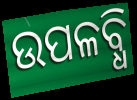
ଉପଳବ୍ଧି